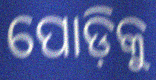
ପୋଡ଼ିକୁ